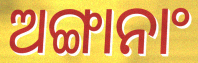
ଅଙ୍ଗାନାଂ